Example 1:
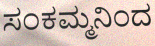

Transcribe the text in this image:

ಸಂಕಮ್ಮನಿಂದ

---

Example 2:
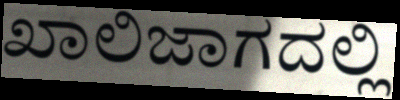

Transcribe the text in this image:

ಖಾಲಿಜಾಗದಲ್ಲಿ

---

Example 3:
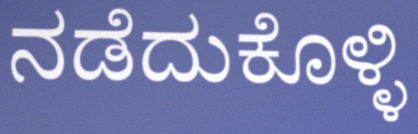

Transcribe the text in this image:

ನಡೆದುಕೊಳ್ಳಿ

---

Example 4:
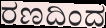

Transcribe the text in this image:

ರಣದಿಂದ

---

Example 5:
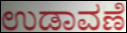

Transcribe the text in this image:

ಉಡಾವಣೆ